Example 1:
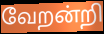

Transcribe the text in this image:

வேறன்றி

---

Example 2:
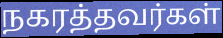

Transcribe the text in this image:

நகரத்தவர்கள்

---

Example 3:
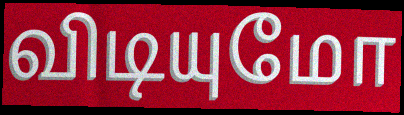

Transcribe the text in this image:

விடியுமோ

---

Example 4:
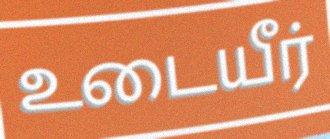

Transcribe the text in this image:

உடையீர்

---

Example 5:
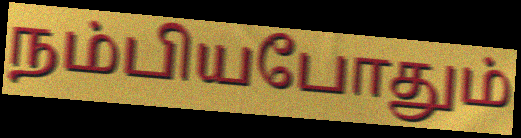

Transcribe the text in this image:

நம்பியபோதும்